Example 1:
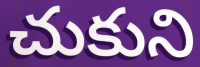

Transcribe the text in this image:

చుకుని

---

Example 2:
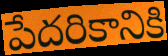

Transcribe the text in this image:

పేదరికానికి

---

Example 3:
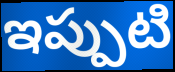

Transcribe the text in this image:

ఇప్పుటి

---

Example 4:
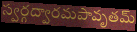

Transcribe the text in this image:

స్వర్గద్వారమపావృతమ్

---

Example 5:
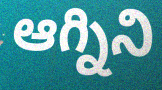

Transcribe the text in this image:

ఆగ్నిని